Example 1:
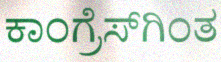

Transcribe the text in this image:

ಕಾಂಗ್ರೆಸ್‌ಗಿಂತ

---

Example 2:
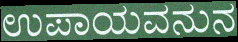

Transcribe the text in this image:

ಉಪಾಯವನುನ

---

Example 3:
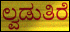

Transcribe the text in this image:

ಲ್ವಡುತಿರೆ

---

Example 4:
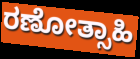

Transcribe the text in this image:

ರಣೋತ್ಸಾಹಿ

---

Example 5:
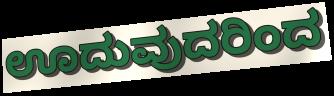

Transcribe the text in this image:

ಊದುವುದರಿಂದ